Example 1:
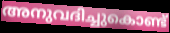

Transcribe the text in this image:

അനുവദിച്ചുകൊണ്ട്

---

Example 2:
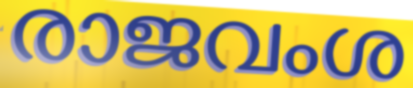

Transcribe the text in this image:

രാജവംശ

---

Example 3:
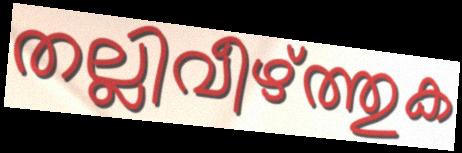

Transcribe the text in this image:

തല്ലിവീഴ്ത്തുക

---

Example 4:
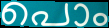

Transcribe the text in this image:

പൊം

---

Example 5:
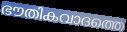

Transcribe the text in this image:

ഭൗതികവാദത്തെ